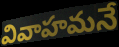
వివాహమనే